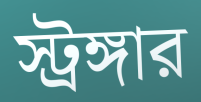
স্ট্রঙ্গার